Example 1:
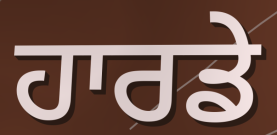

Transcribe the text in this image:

ਹਾਰਡੇ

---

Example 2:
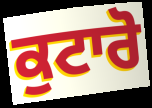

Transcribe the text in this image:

ਕੁਟਾਰੋ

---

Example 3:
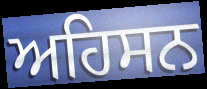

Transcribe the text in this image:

ਅਹਿਸਨ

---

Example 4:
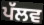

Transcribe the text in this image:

ਪੱਲਵ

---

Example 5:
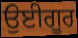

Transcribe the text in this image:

ਉਈਗੂਰ